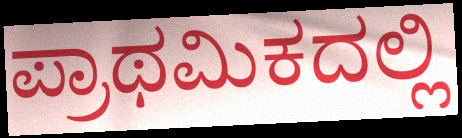
ಪ್ರಾಥಮಿಕದಲ್ಲಿ